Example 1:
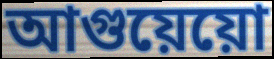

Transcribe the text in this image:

আগুয়েয়ো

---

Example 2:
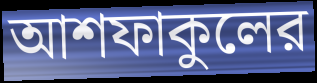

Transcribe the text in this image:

আশফাকুলের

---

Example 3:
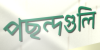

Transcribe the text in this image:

পছন্দগুলি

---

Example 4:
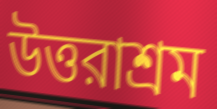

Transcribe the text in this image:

উত্তরাশ্রম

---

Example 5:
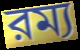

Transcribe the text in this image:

রম্য